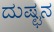
ದುಷ್ಟನ